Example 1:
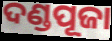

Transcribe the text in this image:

ଦଣ୍ଡପୂଜା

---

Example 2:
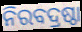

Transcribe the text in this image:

ନିରବଦ୍ରଷ୍ଠା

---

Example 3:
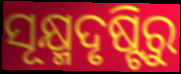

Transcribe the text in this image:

ସୂକ୍ଷ୍ମଦୃଷ୍ଟିରୁ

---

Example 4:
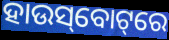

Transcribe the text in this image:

ହାଉସ୍‌ବୋଟ୍‌ରେ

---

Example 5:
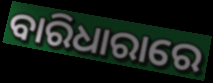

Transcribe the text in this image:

ବାରିଧାରାରେ